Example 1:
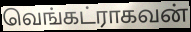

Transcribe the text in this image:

வெங்கட்ராகவன்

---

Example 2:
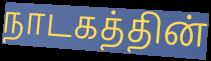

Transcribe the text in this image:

நாடகத்தின்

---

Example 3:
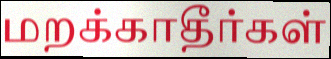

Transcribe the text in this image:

மறக்காதீர்கள்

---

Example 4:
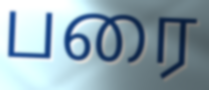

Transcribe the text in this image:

பரை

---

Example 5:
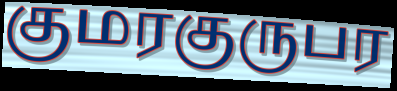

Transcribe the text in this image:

குமரகுருபர